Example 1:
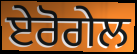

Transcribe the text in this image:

ਏਰੋਗੇਲ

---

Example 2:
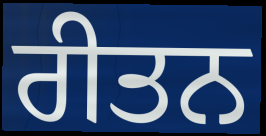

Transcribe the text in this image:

ਰੀਤਨ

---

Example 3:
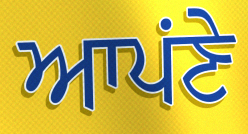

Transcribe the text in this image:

ਆਪਂਣੇ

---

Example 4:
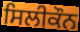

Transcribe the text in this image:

ਸਿਲੀਕੌਨ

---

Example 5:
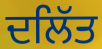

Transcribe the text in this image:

ਦਲਿੱਤ